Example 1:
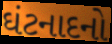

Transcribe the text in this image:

ઘંટનાદનો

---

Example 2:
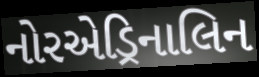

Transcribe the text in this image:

નોરએડ્રિનાલિન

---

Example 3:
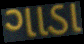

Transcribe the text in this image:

ગાડા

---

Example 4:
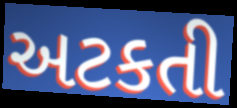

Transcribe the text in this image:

અટકતી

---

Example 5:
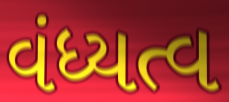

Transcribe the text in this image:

વંધ્યત્વ